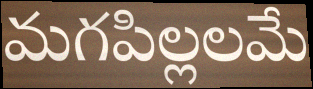
మగపిల్లలమే